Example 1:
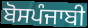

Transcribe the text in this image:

ਬੋਸਪੰਜਾਬੀ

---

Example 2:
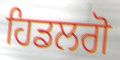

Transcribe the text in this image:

ਹਿਡਲਗੋ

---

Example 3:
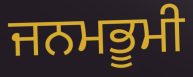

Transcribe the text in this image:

ਜਨਮਭੂਮੀ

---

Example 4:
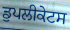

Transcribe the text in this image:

ਡੁਪਲੀਕੇਟਸ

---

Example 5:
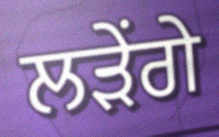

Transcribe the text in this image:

ਲੜੇਂਗੇ